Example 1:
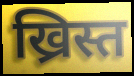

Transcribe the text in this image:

ख्रिस्त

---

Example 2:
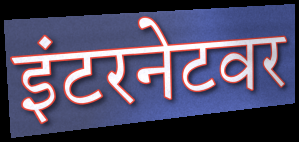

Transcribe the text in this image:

इंटरनेटवर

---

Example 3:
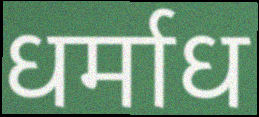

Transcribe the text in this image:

धर्माध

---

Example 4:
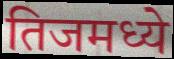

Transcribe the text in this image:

तिजमध्ये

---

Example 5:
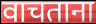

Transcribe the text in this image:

वाचताना